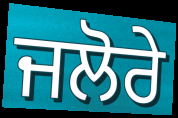
ਜਲੋਰੇ